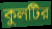
কুলটির